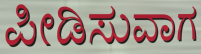
ಪೀಡಿಸುವಾಗ